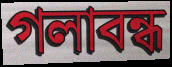
গলাবন্ধ